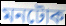
মনটোক